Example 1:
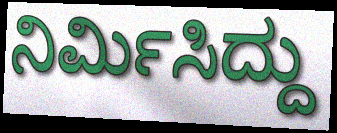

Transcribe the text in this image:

ನಿರ್ಮಿಸಿದ್ದು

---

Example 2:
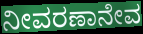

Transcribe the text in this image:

ನೀವರಣಾನೇವ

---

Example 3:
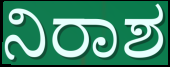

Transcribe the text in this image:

ನಿರಾಶ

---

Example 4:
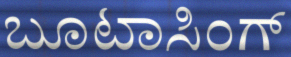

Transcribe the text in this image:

ಬೂಟಾಸಿಂಗ್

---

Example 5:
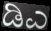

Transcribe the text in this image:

ಡಿಎ